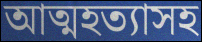
আত্মহত্যাসহ